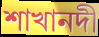
শাখানদী